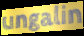
ungalin